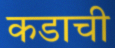
कडाची